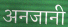
अनजानी